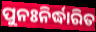
ପୁନଃନିର୍ଦ୍ଧାରିତ